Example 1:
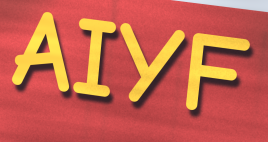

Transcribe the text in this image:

AIYF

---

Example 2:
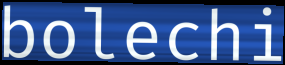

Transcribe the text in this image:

bolechi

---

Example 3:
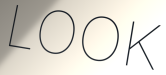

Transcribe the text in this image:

LOOK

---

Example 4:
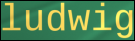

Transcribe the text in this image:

ludwig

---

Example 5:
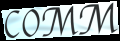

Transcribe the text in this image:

COMM